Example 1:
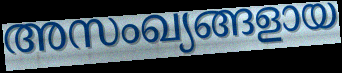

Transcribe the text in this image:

അസംഖ്യങ്ങളായ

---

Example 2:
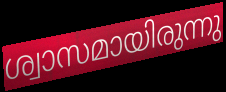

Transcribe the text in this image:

ശ്വാസമായിരുന്നു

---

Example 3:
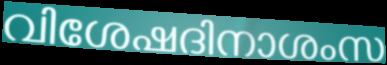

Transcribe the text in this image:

വിശേഷദിനാശംസ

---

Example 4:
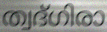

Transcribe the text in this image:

ത്വദ്ഗിരാ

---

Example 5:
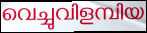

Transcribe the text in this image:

വെച്ചുവിളമ്പിയ